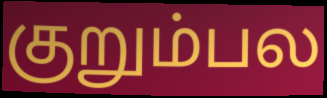
குறும்பல